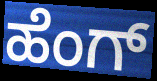
ಹೆಂಗ್